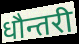
धौन्तरी